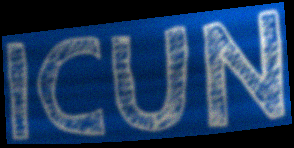
ICUN